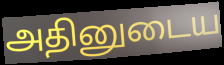
அதினுடைய